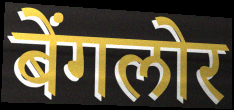
बेंगलोर